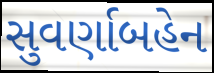
સુવર્ણાબહેન